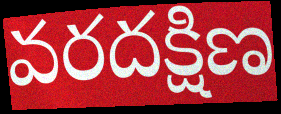
వరదక్షిణ